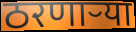
ठरणाऱ्या